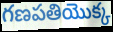
గణపతియొక్క